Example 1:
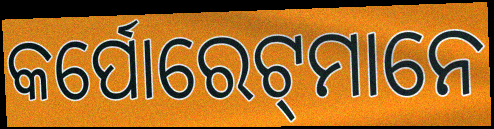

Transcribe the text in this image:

କର୍ପୋରେଟ୍‌ମାନେ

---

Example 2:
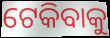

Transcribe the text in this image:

ଟେକିବାକୁ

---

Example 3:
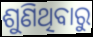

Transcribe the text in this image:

ଶୁଣିଥିବାରୁ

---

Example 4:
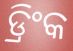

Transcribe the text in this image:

ଡ୍ରିଂକ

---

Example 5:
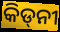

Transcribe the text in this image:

କିଡ୍‌ନୀ